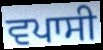
ਵਪਾਸੀ